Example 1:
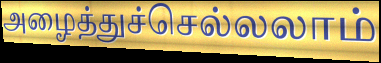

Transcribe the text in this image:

அழைத்துச்செல்லலாம்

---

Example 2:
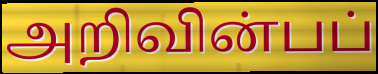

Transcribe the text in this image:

அறிவின்பப்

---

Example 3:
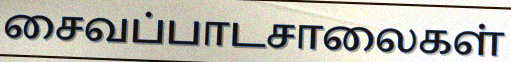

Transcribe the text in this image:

சைவப்பாடசாலைகள்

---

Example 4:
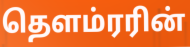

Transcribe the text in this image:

தௌம்ரரின்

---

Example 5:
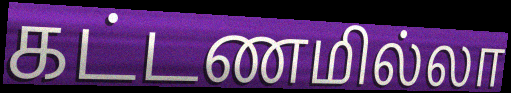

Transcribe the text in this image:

கட்டணமில்லா